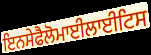
ਇਨਸੇਫੈਲੋਮਾਈਲਾਈਟਿਸ